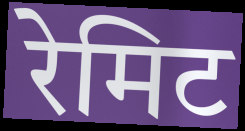
रेमिट